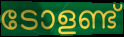
ടോളണ്ട്